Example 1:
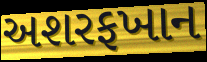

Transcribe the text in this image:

અશરફખાન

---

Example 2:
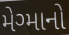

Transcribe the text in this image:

મેગ્માનો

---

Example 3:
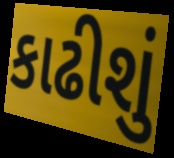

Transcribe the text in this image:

કાઢીશું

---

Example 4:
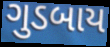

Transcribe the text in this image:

ગુડબાય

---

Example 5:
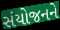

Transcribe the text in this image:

સંયોજનને